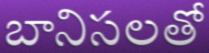
బానిసలతో